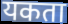
यकता